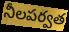
నీలపర్వత